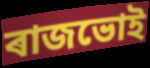
ৰাজভোই